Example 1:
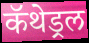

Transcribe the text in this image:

कॅथेड्रल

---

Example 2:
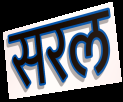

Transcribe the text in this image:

सरल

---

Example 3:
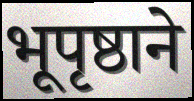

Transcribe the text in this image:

भूपृष्ठाने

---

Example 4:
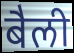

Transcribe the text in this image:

बैली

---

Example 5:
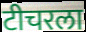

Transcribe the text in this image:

टीचरला